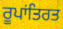
ਰੂਪਾਂਤਿਰਤ